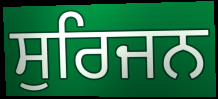
ਸੁਰਿਜਨ